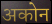
अकोन